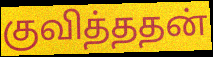
குவித்ததன்